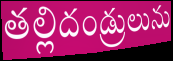
తల్లిదండ్రులును